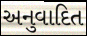
અનુવાદિત